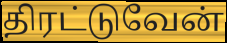
திரட்டுவேன்